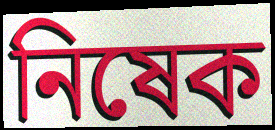
নিষেক